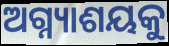
ଅଗ୍ନ୍ୟାଶୟକୁ